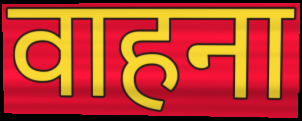
वाहना